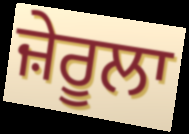
ਜ਼ੇਰੂਲਾ